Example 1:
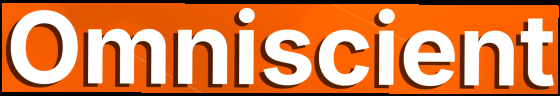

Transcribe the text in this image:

Omniscient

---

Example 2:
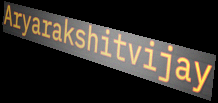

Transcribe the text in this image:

Aryarakshitvijay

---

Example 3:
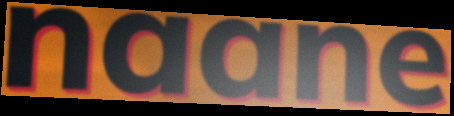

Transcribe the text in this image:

naane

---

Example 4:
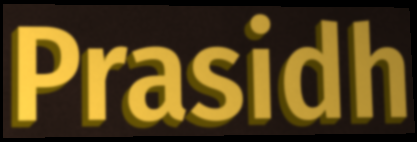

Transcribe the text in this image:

Prasidh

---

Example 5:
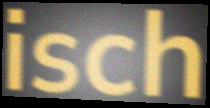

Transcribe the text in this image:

isch